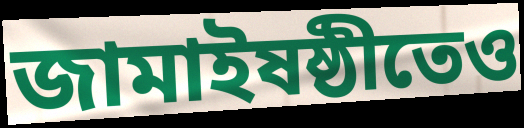
জামাইষষ্ঠীতেও